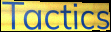
Tactics